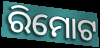
ରିମୋଟ